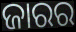
ଜାରର